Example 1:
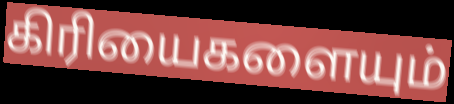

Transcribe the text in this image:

கிரியைகளையும்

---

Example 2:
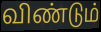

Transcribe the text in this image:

விண்டும்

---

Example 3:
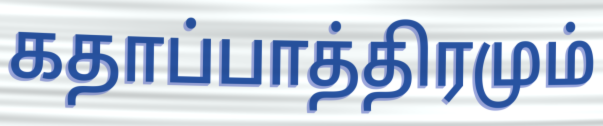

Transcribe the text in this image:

கதாப்பாத்திரமும்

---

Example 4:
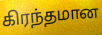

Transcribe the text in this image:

கிரந்தமான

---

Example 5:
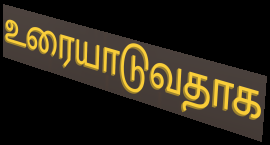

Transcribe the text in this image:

உரையாடுவதாக